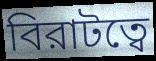
বিরাটত্বে